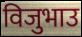
विजुभाउ